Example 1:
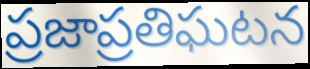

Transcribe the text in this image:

ప్రజాప్రతిఘటన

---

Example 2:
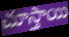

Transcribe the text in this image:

చూస్తాయి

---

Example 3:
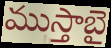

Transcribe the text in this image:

ముస్తాబై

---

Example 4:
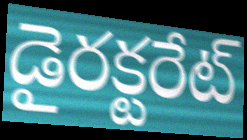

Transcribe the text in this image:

డైరక్టరేట్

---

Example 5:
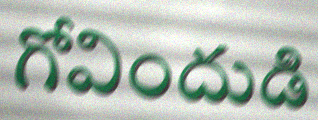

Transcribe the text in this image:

గోవిందుడి